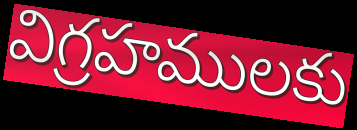
విగ్రహములకు